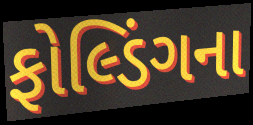
ફોલ્ડિંગના